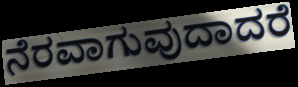
ನೆರವಾಗುವುದಾದರೆ